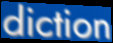
diction